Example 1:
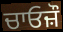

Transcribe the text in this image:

ਚਾਓਜ਼ੌ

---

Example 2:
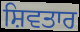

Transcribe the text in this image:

ਸ਼ਿਵਤਾਰ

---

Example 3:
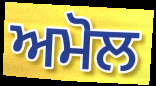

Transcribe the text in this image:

ਅਮੋਲ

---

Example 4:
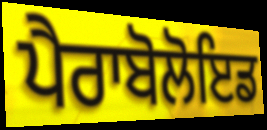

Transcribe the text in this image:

ਪੈਰਾਬੋਲੋਇਡ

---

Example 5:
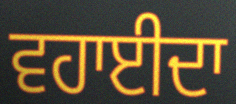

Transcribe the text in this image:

ਵਹਾਈਦਾ